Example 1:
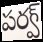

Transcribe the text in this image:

పర్వ్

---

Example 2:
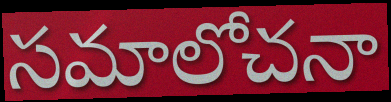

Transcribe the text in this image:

సమాలోచనా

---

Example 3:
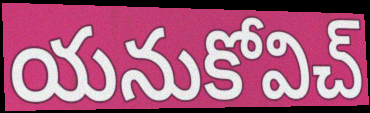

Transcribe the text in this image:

యనుకోవిచ్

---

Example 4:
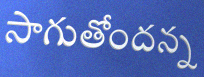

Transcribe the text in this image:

సాగుతోందన్న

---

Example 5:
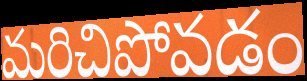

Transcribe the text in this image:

మరిచిపోవడం